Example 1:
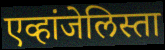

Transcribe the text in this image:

एव्हांजेलिस्ता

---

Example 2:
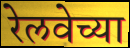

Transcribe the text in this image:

रेलवेच्या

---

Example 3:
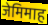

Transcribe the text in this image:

जेमिमाह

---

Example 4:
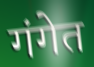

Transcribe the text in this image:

गंगेत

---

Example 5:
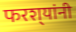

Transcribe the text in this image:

फरश्यांनी